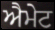
ਐਮੇਟ